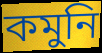
কমুনি